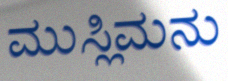
ಮುಸ್ಲಿಮನು